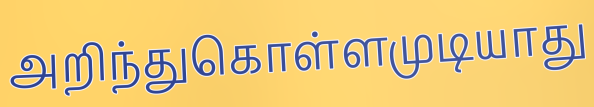
அறிந்துகொள்ளமுடியாது